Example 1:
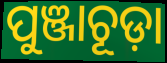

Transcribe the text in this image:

ପୁଞ୍ଜାଚୂଡ଼ା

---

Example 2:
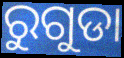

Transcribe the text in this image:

ରୁଗୁଡା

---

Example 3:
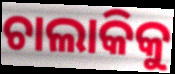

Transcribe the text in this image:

ଚାଲାକିକୁ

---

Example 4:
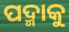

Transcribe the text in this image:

ପଦ୍ମାକୁ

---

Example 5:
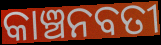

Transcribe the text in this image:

କାଞ୍ଚନବତୀ